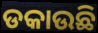
ଡକାଉଛି